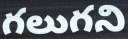
గలుగని